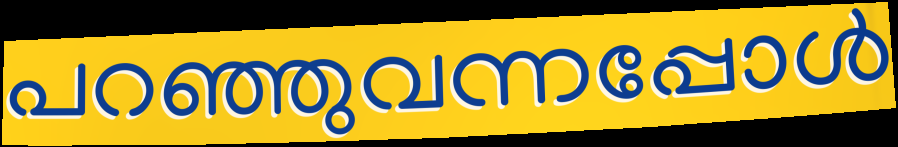
പറഞ്ഞുവന്നപ്പോൾ